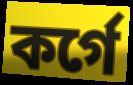
কর্গে